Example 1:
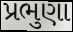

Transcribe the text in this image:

પ્રભુણા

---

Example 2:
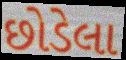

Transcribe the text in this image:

છોડેલા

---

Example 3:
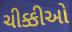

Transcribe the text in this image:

ચીક્કીઓ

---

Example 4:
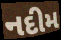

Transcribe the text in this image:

નદીમ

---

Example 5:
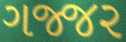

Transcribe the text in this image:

ગજ્જર